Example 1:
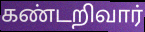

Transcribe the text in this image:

கண்டறிவார்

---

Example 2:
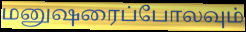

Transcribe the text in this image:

மனுஷரைப்போலவும்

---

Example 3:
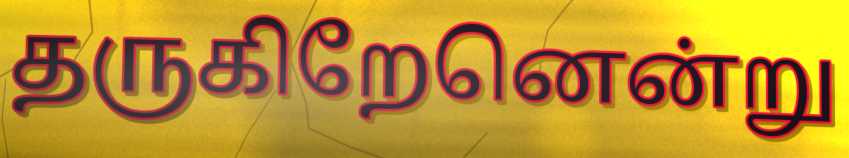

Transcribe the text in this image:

தருகிறேனென்று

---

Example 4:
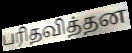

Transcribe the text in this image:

பரிதவித்தன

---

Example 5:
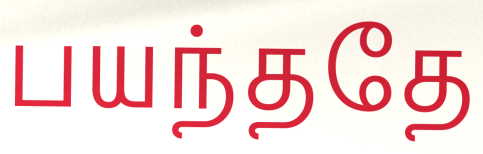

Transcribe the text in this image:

பயந்ததே